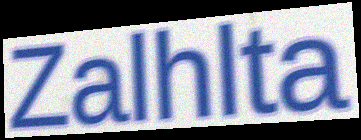
Zalhlta